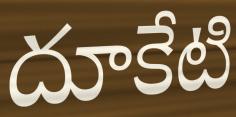
దూకేటి